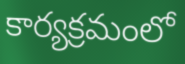
కార్యక్రమంలో